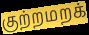
குற்றமறக்